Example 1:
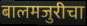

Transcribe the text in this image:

बालमजुरीचा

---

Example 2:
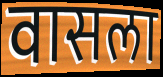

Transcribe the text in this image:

वासला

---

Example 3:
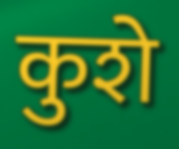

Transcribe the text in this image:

कुशे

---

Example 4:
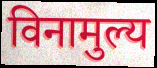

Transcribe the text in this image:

विनामुल्य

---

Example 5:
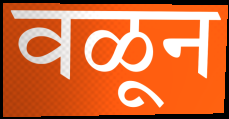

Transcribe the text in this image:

वळून